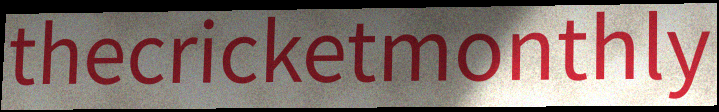
thecricketmonthly